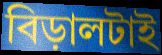
বিড়ালটাই